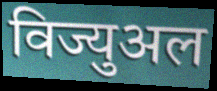
विज्युअल